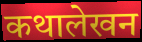
कथालेखन